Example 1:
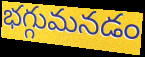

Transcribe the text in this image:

భగ్గుమనడం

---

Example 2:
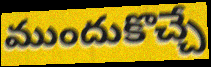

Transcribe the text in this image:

ముందుకొచ్చే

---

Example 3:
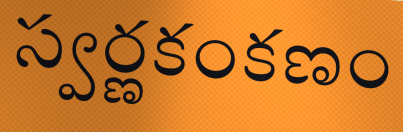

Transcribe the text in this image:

స్వర్ణకంకణం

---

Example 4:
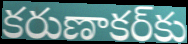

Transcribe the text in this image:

కరుణాకర్‌కు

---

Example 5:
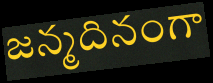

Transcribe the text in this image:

జన్మదినంగా